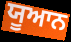
ਯੂਆਨ